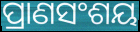
ପ୍ରାଣସଂଶୟ